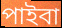
পাইবা